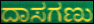
ದಾಸಗಣು